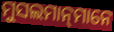
ମୁସଲମାନ୍‌ମାନେ